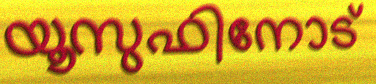
യൂസുഫിനോട്